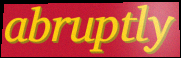
abruptly